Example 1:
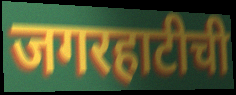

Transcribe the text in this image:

जगरहाटीची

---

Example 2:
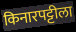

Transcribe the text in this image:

किनारपट्टीला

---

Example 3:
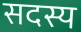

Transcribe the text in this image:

सदस्‍य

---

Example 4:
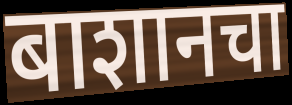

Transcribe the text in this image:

बाशानचा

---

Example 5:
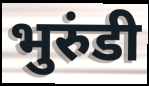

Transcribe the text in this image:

भुरुंडी